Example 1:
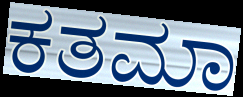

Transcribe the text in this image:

ಕತಮಾ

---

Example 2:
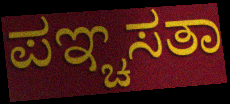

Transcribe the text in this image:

ಪಞ್ಚಸತಾ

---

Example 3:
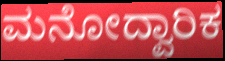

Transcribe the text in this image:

ಮನೋದ್ವಾರಿಕ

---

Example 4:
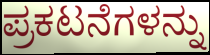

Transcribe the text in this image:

ಪ್ರಕಟನೆಗಳನ್ನು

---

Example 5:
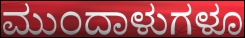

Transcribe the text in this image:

ಮುಂದಾಳುಗಳೂ